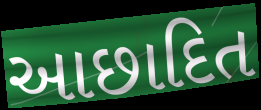
આછાદિત